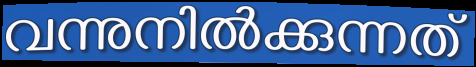
വന്നുനിൽക്കുന്നത്